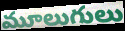
మూలుగులు